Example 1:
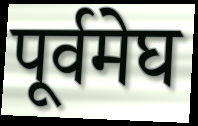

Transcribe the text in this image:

पूर्वमेघ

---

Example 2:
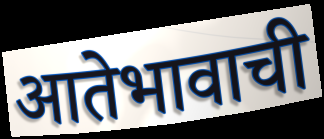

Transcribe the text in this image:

आतेभावाची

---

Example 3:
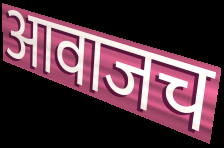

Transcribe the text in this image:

आवाजच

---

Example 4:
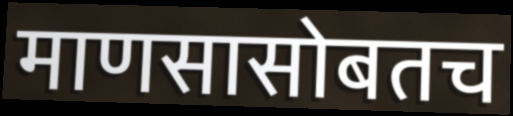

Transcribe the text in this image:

माणसासोबतच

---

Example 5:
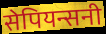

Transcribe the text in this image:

सेपियन्सनी